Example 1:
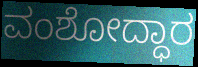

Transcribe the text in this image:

ವಂಶೋದ್ಧಾರ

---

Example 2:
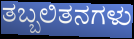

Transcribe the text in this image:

ತಬ್ಬಲಿತನಗಳು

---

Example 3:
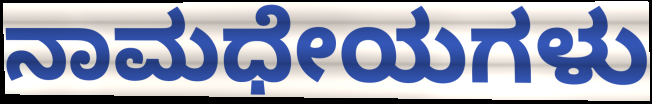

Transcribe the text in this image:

ನಾಮಧೇಯಗಳು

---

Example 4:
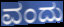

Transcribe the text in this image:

ವಂದು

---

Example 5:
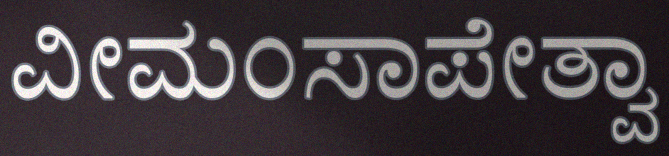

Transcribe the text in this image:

ವೀಮಂಸಾಪೇತ್ವಾ